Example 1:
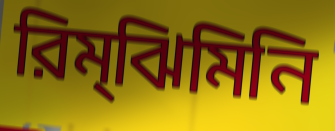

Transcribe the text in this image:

রিম্‌ঝিমিনি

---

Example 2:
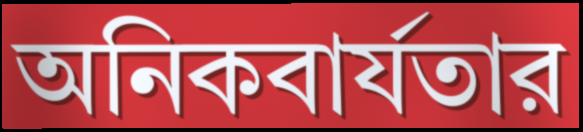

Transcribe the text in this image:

অনিকবার্যতার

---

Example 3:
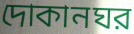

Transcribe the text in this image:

দোকানঘর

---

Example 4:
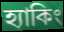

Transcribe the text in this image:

হ্যাকিং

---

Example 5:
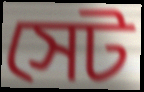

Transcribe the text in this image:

সেট